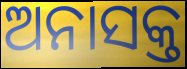
ଅନାସକ୍ତ